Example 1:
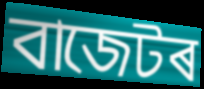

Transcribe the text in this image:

বাজেটৰ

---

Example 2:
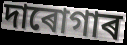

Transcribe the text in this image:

দাৰোগাৰ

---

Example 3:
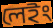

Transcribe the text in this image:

লেইং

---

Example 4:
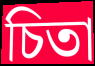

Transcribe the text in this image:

চিতা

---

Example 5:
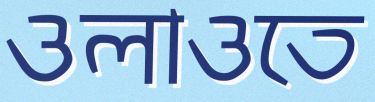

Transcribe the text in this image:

ওলাওতে